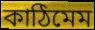
কাঠিমেম